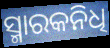
ସ୍ମାରକନିଧି